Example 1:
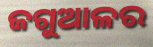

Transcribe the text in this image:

ଜଗୁଆଳର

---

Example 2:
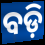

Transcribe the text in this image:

ବଡ଼ି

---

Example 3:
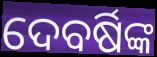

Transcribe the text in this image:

ଦେବର୍ଷିଙ୍କ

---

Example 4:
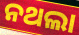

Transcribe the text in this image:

ନଥଲା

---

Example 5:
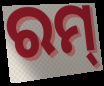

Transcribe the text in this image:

ରମ୍